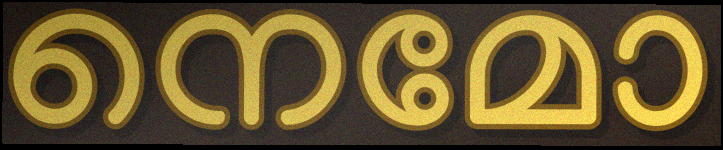
നെമോ